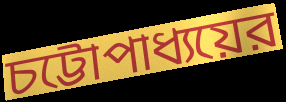
চট্টোপাধ্যয়ের